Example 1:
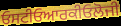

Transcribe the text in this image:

ਓਸਟੀਓਆਰਕੀਓਲੋਜੀ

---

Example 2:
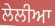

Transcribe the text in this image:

ਲੇਲੀਆ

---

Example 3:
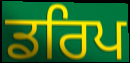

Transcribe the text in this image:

ਡਰਿਪ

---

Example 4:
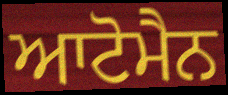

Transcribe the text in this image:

ਆਟੋਮੈਨ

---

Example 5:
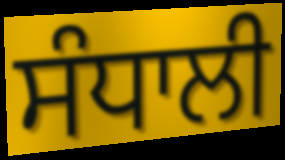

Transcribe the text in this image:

ਸੰਧਾਲੀ